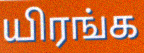
யிரங்க